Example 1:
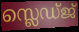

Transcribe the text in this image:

സ്ലെഡ്ജ്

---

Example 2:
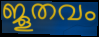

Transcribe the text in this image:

ജൂതവം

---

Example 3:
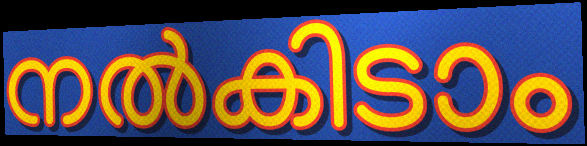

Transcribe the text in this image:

നൽകിടാം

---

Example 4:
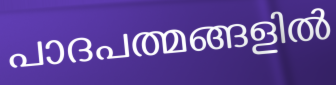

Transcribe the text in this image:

പാദപത്മങ്ങളിൽ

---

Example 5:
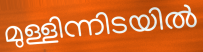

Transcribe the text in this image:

മുള്ളിന്നിടയിൽ